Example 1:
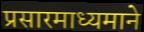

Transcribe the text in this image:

प्रसारमाध्यमाने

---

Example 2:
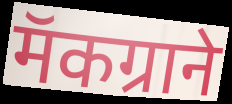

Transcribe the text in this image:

मॅकग्राने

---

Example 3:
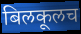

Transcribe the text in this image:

बिलकूलच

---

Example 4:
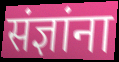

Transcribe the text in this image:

संज्ञांना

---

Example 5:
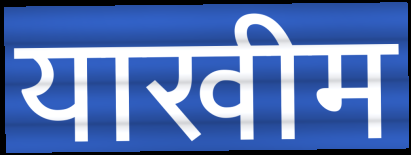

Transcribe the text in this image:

याखीम